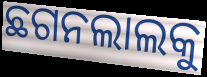
ଛଗନଲାଲକୁ